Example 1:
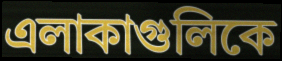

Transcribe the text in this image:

এলাকাগুলিকে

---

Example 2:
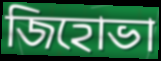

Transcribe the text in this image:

জিহোভা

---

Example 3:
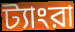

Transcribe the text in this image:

ট্যাংরা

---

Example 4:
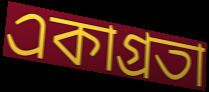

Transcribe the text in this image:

একাগ্রতা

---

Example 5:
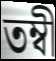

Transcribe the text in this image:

তম্বী